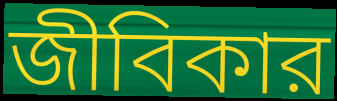
জীবিকার